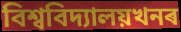
বিশ্ববিদ্যালয়খনৰ